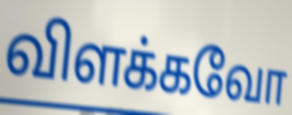
விளக்கவோ